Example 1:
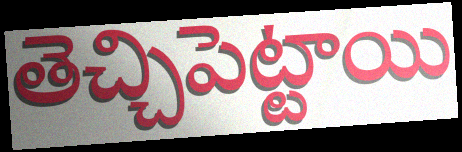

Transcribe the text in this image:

తెచ్చిపెట్టాయి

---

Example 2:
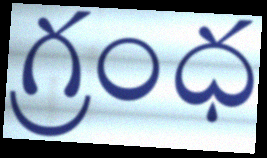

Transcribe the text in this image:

గ్రంధ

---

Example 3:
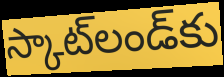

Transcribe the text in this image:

స్కాట్‌లండ్‌కు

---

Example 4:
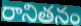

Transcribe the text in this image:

రానితనం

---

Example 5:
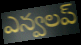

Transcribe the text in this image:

ఎన్వలప్